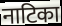
नाटिका